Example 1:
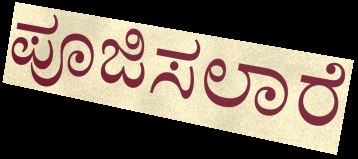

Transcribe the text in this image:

ಪೂಜಿಸಲಾರೆ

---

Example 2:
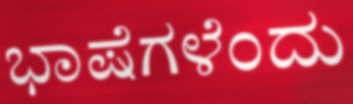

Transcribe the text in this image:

ಭಾಷೆಗಳೆಂದು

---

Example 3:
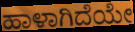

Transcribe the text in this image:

ಹಾಳಾಗಿದೆಯೇ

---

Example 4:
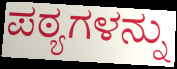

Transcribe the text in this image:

ಪಠ್ಯಗಳನ್ನು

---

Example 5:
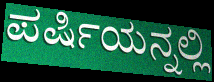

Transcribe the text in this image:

ಪರ್ಷಿಯನ್ನಲ್ಲಿ